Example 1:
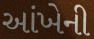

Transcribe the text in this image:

આંખેની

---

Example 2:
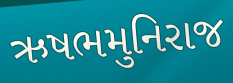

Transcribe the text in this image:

ઋષભમુનિરાજ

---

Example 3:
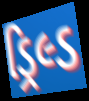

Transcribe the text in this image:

ડ્રિલ્ડ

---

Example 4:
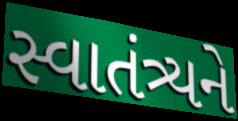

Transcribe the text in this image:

સ્વાતંત્ર્યને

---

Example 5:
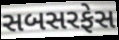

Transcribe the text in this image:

સબસરફેસ